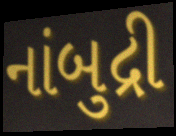
નાંબુદ્રી